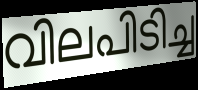
വിലപിടിച്ച